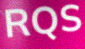
RQS